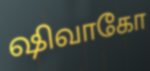
ஷிவாகோ